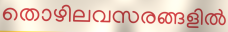
തൊഴിലവസരങ്ങളിൽ